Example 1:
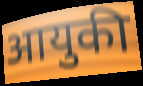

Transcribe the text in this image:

आयुकी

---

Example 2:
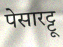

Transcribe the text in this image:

पेसारट्टू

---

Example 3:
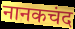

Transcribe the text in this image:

नानकचंद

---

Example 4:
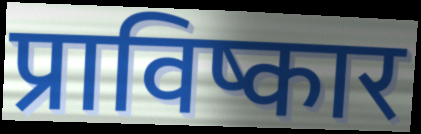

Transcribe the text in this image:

प्राविष्कार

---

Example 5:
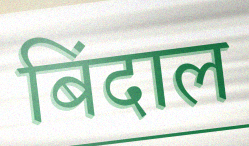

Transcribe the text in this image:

बिंदाल